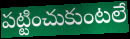
పట్టించుకుంటలే